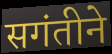
सगंतीने